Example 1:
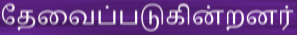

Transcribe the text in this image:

தேவைப்படுகின்றனர்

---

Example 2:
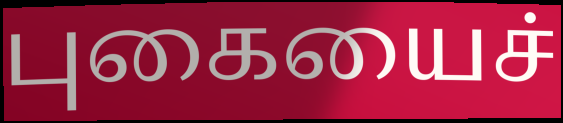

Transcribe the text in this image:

புகையைச்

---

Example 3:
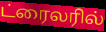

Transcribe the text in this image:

ட்ரைலரில்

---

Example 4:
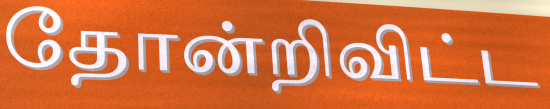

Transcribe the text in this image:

தோன்றிவிட்ட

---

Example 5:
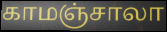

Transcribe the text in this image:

காமஞ்சாலா